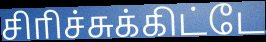
சிரிச்சுக்கிட்டே